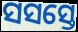
ସସସ୍ତେ